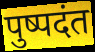
पुष्पदंत